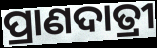
ପ୍ରାଣଦାତ୍ରୀ